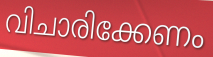
വിചാരിക്കേണം